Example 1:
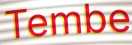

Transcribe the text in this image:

Tembe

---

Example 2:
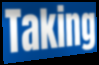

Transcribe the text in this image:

Taking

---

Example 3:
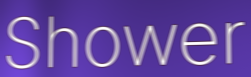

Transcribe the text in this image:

Shower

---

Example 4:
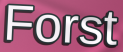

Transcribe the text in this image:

Forst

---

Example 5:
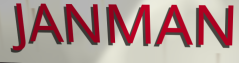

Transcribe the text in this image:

JANMAN